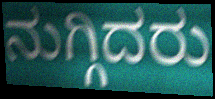
ನುಗ್ಗಿದರು